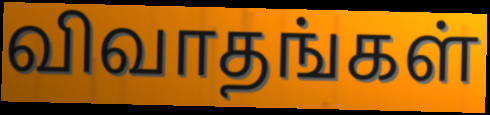
விவாதங்கள்